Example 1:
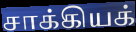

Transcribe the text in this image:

சாக்கியக்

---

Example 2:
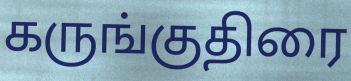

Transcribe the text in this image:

கருங்குதிரை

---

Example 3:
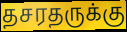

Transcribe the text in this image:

தசரதருக்கு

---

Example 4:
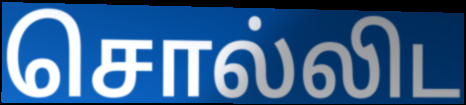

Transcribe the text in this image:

சொல்லிட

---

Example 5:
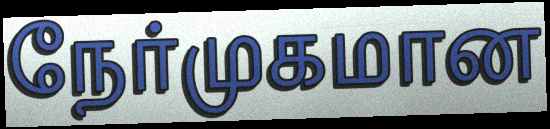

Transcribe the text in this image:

நேர்முகமான